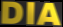
DIA